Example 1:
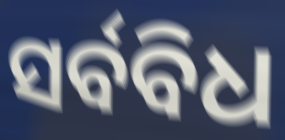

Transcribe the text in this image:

ସର୍ବବିଧ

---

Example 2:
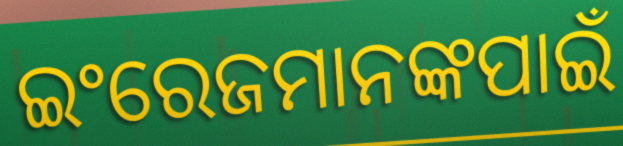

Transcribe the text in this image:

ଇଂରେଜମାନଙ୍କପାଇଁ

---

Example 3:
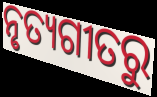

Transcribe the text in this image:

ନୃତ୍ୟଗୀତରୁ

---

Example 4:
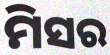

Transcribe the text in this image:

ମିସର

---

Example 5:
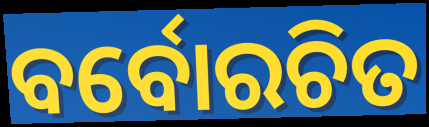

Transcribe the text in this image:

ବର୍ବୋରଚିତ